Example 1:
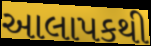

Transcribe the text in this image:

આલાપકથી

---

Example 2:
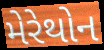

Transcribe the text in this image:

મેરેથોન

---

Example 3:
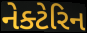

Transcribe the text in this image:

નેક્ટેરિન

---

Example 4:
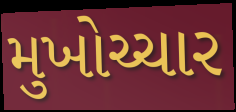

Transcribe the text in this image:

મુખોચ્ચાર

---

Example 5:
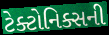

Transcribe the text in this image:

ટેક્ટોનિક્સની